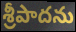
శ్రీపాదను